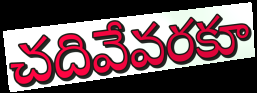
చదివేవరకూ